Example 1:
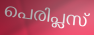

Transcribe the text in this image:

പെരിപ്ലസ്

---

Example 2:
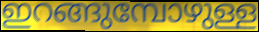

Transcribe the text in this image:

ഇറങ്ങുമ്പോഴുള്ള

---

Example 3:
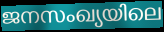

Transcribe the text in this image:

ജനസംഖ്യയിലെ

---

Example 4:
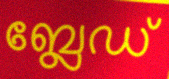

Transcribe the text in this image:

ബ്ലേഡ്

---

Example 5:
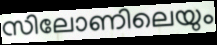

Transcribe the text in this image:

സിലോണിലെയും